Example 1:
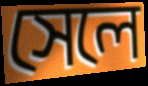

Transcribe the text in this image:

সেলে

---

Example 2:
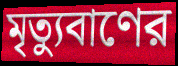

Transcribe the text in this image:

মৃত্যুবাণের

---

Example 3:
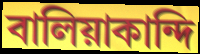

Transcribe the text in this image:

বালিয়াকান্দি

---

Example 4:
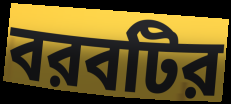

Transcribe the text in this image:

বরবটির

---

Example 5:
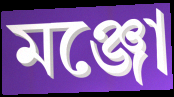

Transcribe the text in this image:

মঞ্জো